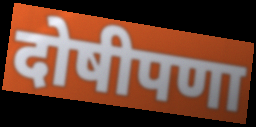
दोषीपणा